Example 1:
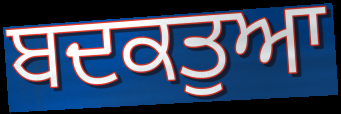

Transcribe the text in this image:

ਬਦਕਤੁਆ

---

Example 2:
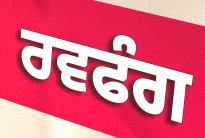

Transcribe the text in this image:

ਰਵਫੰਗ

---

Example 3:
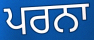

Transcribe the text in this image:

ਪਰਨਾ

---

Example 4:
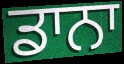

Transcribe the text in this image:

ਡਾਨਾ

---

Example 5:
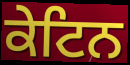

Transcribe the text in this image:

ਕੇਟਿਨ